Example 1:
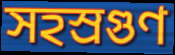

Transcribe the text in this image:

সহস্রগুণ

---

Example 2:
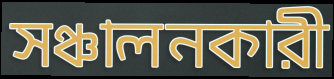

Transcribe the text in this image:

সঞ্চালনকারী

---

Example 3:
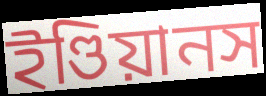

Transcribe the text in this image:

ইণ্ডিয়ানস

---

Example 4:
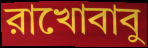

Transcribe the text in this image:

রাখোবাবু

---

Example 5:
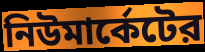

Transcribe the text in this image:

নিউমার্কেটের